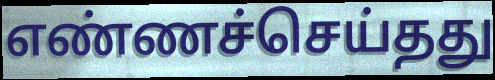
எண்ணச்செய்தது